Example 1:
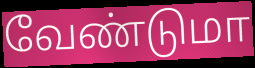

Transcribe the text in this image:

வேண்டுமா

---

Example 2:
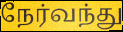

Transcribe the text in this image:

நேர்வந்து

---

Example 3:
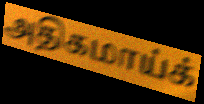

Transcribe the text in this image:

அதிகமாய்க்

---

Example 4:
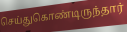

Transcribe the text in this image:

செய்துகொண்டிருந்தார்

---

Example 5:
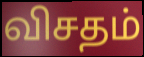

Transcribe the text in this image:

விசதம்